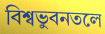
বিশ্বভুবনতলে